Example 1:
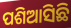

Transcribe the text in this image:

ପଶିଆସିଛି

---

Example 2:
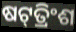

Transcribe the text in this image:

ଷଟ୍‌ତ୍ରିଂଶ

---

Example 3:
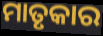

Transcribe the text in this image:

ମାତୃକାର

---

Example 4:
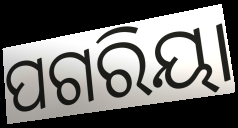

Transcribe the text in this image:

ପଗରିୟା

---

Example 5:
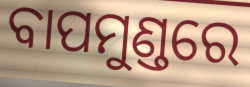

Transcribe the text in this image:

ବାପମୁଣ୍ଡରେ